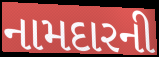
નામદારની